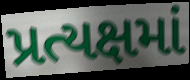
પ્રત્‍યક્ષમાં